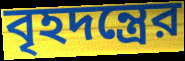
বৃহদন্ত্রের